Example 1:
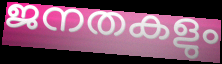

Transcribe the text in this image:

ജനതകളും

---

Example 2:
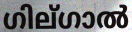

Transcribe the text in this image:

ഗില്ഗാൽ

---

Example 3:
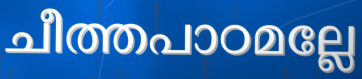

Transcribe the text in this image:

ചീത്തപാഠമല്ലേ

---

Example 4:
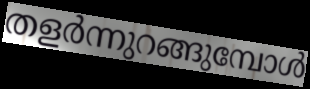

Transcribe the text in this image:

തളർന്നുറങ്ങുമ്പോൾ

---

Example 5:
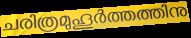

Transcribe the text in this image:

ചരിത്രമുഹൂർത്തത്തിനു